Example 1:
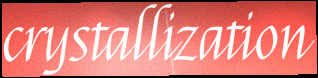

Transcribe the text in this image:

crystallization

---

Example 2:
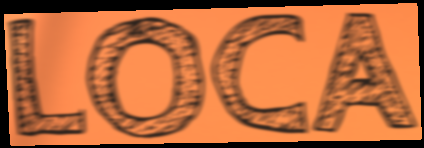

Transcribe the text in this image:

LOCA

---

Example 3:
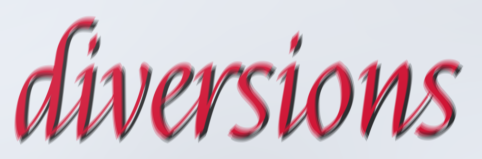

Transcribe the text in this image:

diversions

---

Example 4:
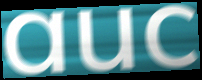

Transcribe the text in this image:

auc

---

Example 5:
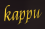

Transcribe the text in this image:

kappu